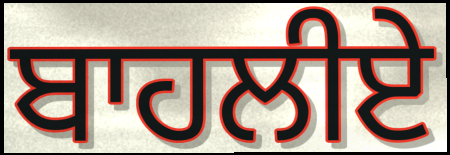
ਬਾਹਲੀਏ